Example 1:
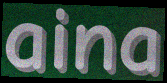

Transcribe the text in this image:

aina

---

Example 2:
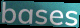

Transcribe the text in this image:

bases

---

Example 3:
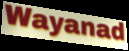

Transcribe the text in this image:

Wayanad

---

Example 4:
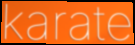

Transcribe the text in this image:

karate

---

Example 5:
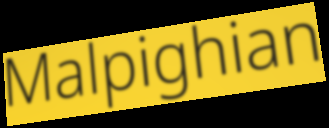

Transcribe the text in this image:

Malpighian